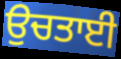
ਉਚਤਾਈ